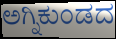
ಅಗ್ನಿಕುಂಡದ